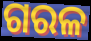
ଗରଳ